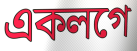
একলগে